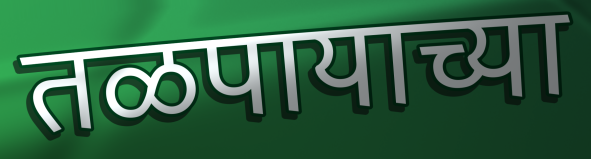
तळपायाच्या